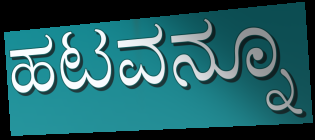
ಹಟವನ್ನೂ